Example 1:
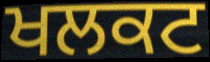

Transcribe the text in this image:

ਖਲਕਟ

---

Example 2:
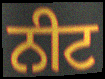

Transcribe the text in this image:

ਨੀਟ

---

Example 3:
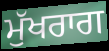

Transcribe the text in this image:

ਮੁੱਖਰਾਗ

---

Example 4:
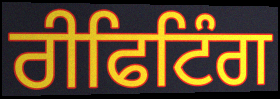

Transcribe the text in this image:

ਰੀਫਿਟਿੰਗ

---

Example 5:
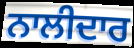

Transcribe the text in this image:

ਨਾਲੀਦਾਰ